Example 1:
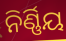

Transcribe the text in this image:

ନିର୍ଣ୍ଣିୟ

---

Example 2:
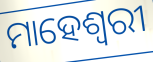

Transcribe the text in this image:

ମାହେଶ୍ଵରୀ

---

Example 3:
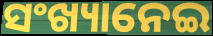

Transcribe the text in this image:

ସଂଖ୍ୟାନେଇ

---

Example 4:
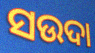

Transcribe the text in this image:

ସଉଦା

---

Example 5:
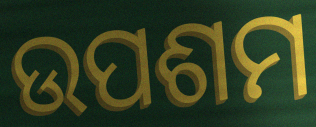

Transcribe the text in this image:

ଉପଶମ